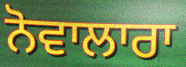
ਨੋਵਾਲਾਰਾ